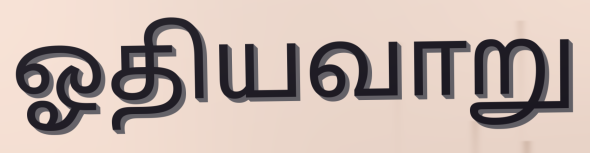
ஓதியவாறு